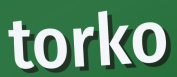
torko